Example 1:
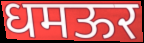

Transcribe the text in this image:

धमऊर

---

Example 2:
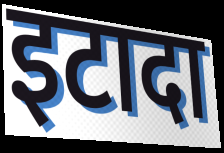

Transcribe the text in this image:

इटादा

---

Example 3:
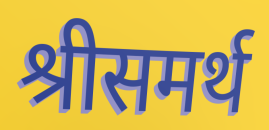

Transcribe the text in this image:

श्रीसमर्थ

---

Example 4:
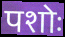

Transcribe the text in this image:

पशोः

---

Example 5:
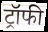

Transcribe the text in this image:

ट्रॉफी